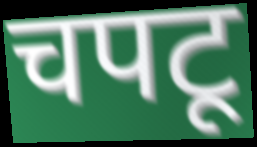
चपटू